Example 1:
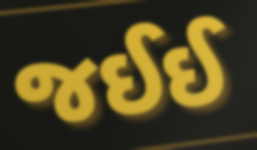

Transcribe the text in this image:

જઈઈ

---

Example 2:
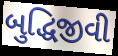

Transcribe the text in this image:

બુદ્ધિજીવી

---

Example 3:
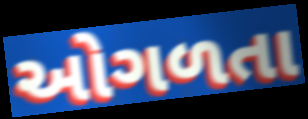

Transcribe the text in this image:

ઓગળતા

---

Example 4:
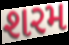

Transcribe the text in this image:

શરમ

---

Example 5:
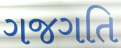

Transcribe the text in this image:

ગજગતિ